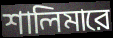
শালিমারে